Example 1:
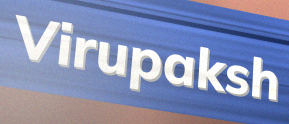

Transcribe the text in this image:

Virupaksh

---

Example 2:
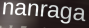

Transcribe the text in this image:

nanraga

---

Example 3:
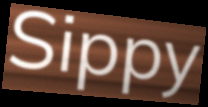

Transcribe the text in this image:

Sippy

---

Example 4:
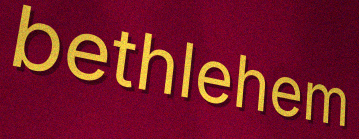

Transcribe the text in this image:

bethlehem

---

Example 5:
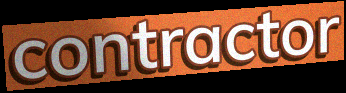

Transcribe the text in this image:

contractor